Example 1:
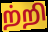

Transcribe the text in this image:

ற்றி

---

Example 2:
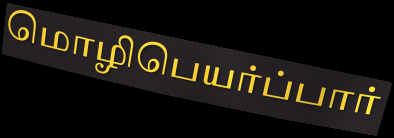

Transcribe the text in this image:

மொழிபெயர்ப்பார்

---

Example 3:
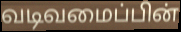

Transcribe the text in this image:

வடிவமைப்பின்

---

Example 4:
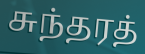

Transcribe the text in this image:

சுந்தரத்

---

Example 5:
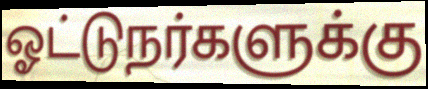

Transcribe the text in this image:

ஓட்டுநர்களுக்கு